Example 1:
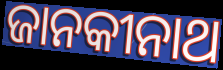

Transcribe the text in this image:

ଜାନକୀନାଥ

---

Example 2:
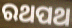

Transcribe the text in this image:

ରଥପଥ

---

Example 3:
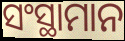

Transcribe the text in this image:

ସଂସ୍ଥାମାନ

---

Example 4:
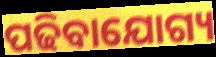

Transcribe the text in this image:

ପଢିବାଯୋଗ୍ୟ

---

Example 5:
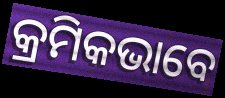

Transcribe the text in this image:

କ୍ରମିକଭାବେ